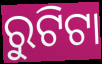
ରୁଟିଟା